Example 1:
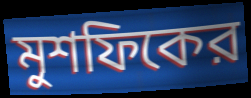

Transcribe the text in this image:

মুশফিকের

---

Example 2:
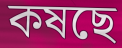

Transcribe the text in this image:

কষছে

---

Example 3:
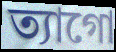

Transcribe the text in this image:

ত্যাগো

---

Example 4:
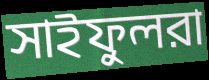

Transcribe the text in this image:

সাইফুলরা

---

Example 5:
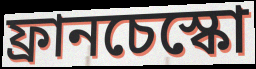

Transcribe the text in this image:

ফ্রানচেস্কো